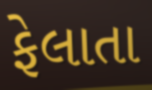
ફેલાતા